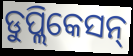
ଡୁପ୍ଲିକେସନ୍